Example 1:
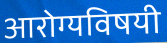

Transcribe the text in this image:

आरोग्यविषयी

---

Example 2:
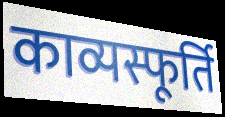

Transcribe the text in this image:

काव्यस्फूर्ति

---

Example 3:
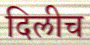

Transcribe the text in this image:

दिलीच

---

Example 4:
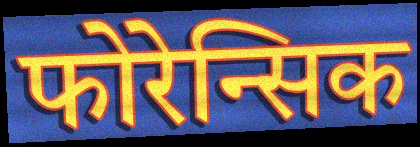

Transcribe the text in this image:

फोरेन्सिक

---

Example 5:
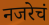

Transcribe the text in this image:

नजरेचं